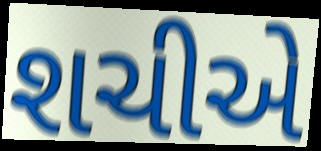
શચીએ